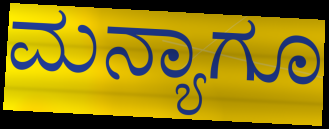
ಮನ್ಯಾಗೂ